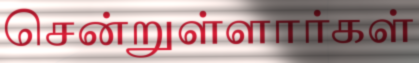
சென்றுள்ளார்கள்